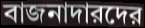
বাজনাদারদের